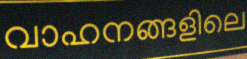
വാഹനങ്ങളിലെ